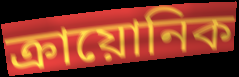
ক্রায়োনিক